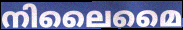
നിലൈമൈ